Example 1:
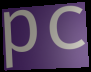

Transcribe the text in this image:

pc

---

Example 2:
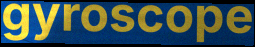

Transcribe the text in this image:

gyroscope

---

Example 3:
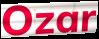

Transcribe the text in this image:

Ozar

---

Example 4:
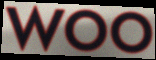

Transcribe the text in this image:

woo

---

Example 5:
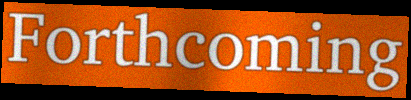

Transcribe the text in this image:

Forthcoming